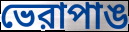
ভেরাপাঙ